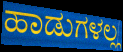
ಹಾಡುಗಳಲ್ಲ